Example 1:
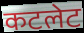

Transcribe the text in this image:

कटलेट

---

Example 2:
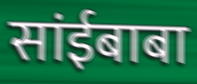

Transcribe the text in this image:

सांईबाबा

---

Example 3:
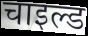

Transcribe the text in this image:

चाइल्ड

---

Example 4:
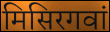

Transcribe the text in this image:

मिसिरगवां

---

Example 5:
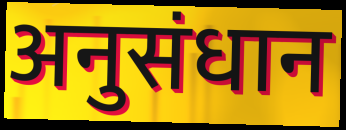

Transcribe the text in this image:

अनुसंधान